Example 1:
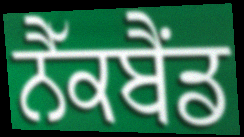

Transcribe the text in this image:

ਨੈੱਕਬੈਂਡ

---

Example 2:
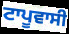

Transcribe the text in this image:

ਟਾਪੂਵਾਸੀ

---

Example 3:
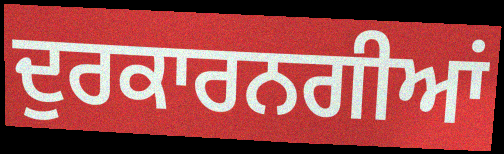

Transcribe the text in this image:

ਦੁਰਕਾਰਨਗੀਆਂ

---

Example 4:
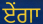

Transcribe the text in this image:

ਏਂਗਾ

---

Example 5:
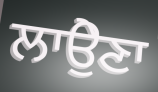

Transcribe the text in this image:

ਲਾਉੇਣਾ